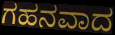
ಗಹನವಾದ